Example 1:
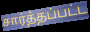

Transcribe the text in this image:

சார்த்தப்பட்ட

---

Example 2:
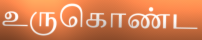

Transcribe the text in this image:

உருகொண்ட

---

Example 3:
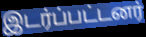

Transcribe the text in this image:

இடர்ப்பட்டனர்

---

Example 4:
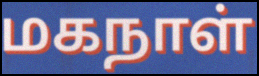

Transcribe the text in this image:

மகநாள்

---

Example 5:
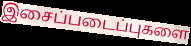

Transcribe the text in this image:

இசைப்படைப்புகளை